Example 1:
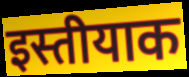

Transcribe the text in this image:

इस्तीयाक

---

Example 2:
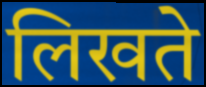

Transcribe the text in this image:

लिखते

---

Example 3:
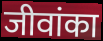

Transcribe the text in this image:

जीवांका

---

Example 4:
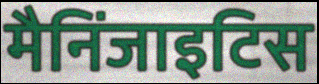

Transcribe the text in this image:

मैनिंजाइटिस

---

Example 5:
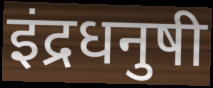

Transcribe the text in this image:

इंद्रधनुषी